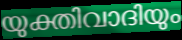
യുക്തിവാദിയും